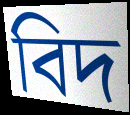
বিদ